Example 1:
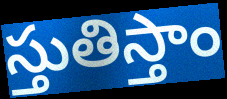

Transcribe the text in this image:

స్తుతిస్తాం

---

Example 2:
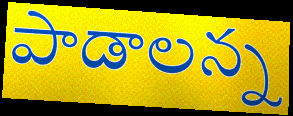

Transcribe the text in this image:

పాడాలన్న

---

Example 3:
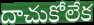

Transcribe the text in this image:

దాచుకోలేక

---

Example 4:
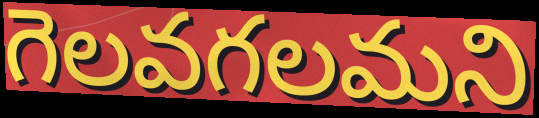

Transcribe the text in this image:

గెలవగలమని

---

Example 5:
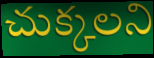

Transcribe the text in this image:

చుక్కలని